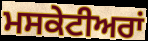
ਮਸਕੇਟੀਅਰਾਂ